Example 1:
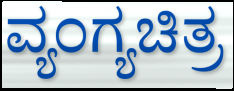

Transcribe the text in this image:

ವ್ಯಂಗ್ಯಚಿತ್ರ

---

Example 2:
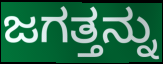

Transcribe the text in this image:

ಜಗತ್ತನ್ನು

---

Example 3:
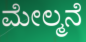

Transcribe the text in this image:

ಮೇಲ್ಮನೆ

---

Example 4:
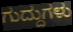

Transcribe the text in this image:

ಗುದ್ದುಗಳು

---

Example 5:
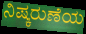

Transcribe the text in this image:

ನಿಷ್ಕರುಣೆಯ